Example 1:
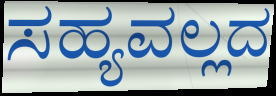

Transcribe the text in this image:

ಸಹ್ಯವಲ್ಲದ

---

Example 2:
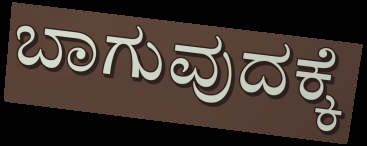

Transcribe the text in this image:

ಬಾಗುವುದಕ್ಕೆ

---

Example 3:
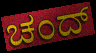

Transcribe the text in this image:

ಚಂದ್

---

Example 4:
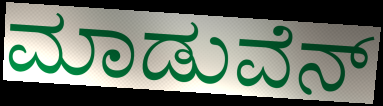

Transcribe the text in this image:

ಮಾಡುವೆನ್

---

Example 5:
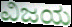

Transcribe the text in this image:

ವಿಜಯ